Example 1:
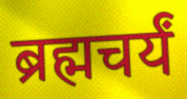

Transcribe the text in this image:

ब्रह्मचर्यं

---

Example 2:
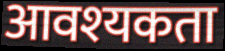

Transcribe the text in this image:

आवश्‍यकता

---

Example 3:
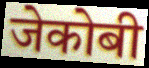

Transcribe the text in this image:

जेकोबी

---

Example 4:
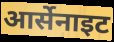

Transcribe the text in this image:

आर्सेनाइट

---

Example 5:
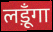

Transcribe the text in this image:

लड़ूँगा